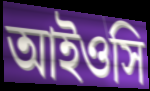
আইওসি